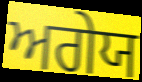
ਅਗੇਯ